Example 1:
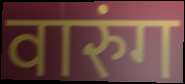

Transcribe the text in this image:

वारुंग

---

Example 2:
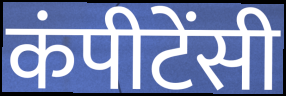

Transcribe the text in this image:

कंपीटेंसी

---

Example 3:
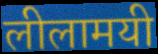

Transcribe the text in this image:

लीलामयी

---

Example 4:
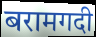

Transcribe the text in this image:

बरामगदी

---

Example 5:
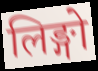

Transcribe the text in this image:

लिङ्गो